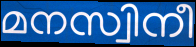
മനസ്വിനീ